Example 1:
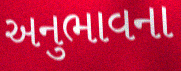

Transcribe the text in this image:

અનુભાવના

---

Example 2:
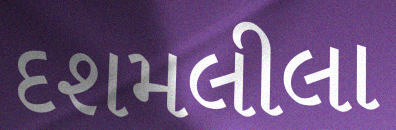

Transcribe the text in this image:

દશમલીલા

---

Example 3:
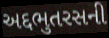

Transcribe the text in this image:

અદ્દભુતરસની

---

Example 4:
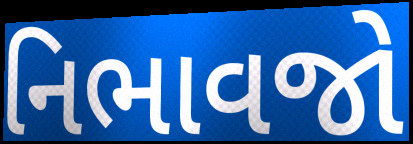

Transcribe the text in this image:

નિભાવજો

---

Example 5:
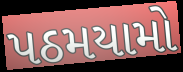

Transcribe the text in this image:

પઠમયામો